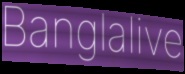
Banglalive